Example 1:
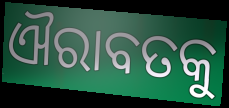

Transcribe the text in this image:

ଐରାବତକୁ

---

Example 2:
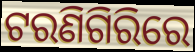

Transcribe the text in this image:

ଟରଣିଗିରିରେ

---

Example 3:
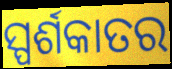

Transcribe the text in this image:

ସ୍ପର୍ଶକାତର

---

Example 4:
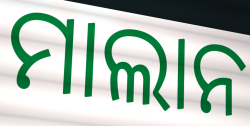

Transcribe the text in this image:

ମାଲାନ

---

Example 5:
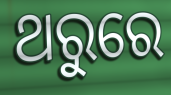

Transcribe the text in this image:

ଥରୁରେ